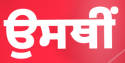
ਉਸਥੀਂ